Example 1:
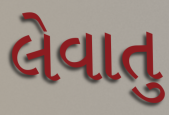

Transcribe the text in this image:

લેવાતુ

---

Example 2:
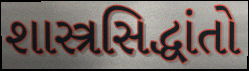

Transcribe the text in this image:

શાસ્ત્રસિદ્ધાંતો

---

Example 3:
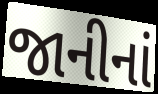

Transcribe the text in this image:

જાનીનાં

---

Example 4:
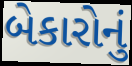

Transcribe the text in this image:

બેકારોનું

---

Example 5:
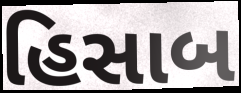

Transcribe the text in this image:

હિસાબ